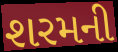
શરમની